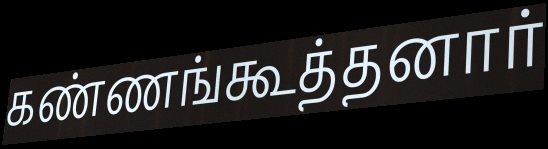
கண்ணங்கூத்தனார்